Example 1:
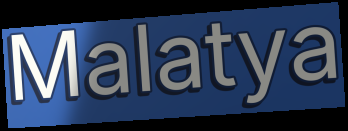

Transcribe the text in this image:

Malatya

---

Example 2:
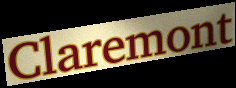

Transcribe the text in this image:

Claremont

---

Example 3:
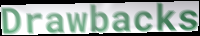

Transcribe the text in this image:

Drawbacks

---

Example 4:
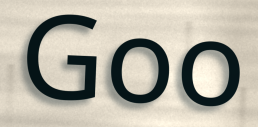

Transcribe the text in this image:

Goo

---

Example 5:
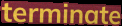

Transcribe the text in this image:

terminate